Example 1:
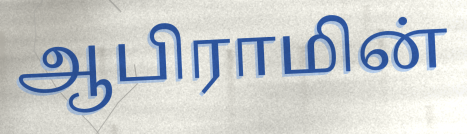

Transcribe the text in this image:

ஆபிராமின்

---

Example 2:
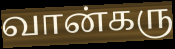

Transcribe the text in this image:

வான்கரு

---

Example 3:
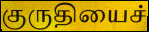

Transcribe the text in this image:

குருதியைச்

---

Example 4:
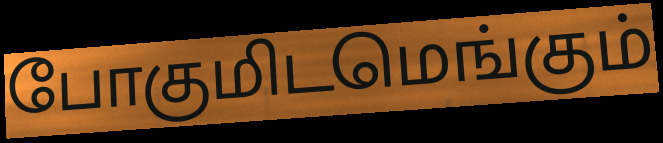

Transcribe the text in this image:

போகுமிடமெங்கும்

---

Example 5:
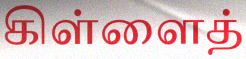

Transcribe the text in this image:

கிள்ளைத்